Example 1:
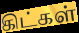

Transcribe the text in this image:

கிட்கள்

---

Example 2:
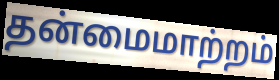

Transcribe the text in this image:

தன்மைமாற்றம்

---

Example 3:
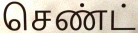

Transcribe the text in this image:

செண்ட்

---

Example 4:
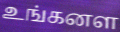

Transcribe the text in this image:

உங்கனள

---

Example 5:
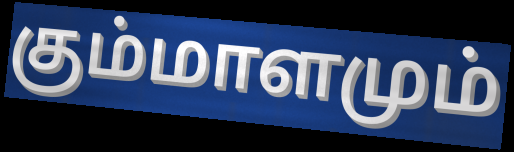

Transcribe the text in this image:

கும்மாளமும்